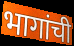
भागांची